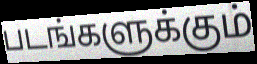
படங்களுக்கும்